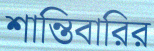
শান্তিবারির